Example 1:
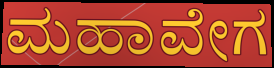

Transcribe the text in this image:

ಮಹಾವೇಗ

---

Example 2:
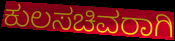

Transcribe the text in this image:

ಕುಲಸಚಿವರಾಗಿ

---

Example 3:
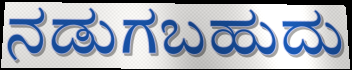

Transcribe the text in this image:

ನಡುಗಬಹುದು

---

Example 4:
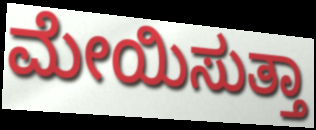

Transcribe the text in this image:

ಮೇಯಿಸುತ್ತಾ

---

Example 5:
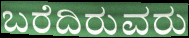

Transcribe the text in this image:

ಬರೆದಿರುವರು